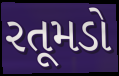
રતૂમડો